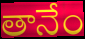
తానేం